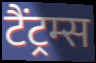
टैंट्रम्स